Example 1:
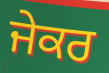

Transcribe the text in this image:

ਜੇਕਰ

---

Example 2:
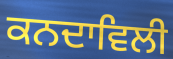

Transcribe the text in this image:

ਕਨਦਾਵਿਲੀ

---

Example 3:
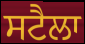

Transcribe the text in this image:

ਸਟੈਲਾ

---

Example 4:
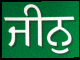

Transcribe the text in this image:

ਜੀਨੁ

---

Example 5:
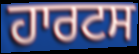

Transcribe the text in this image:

ਹਾਰਟਸ